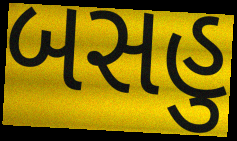
બસહુ